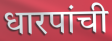
धारपांची